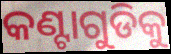
କଣ୍ଟାଗୁଡିକୁ